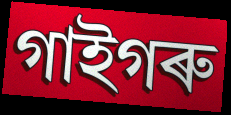
গাইগৰু